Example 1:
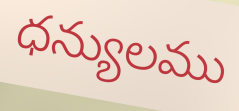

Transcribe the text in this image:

ధన్యులము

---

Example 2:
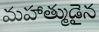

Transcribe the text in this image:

మహాత్ముడైన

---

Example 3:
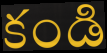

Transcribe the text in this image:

కండి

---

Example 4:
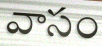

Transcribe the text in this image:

వాసం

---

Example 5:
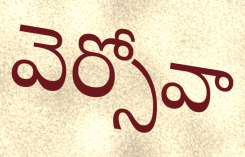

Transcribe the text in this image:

వెర్సోవా